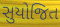
સુયોજિત